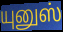
யுனுஸ்